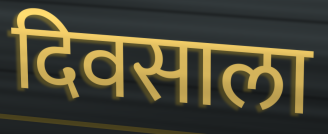
दिवसाला